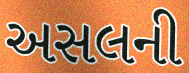
અસલની